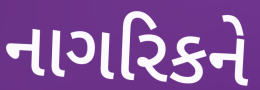
નાગરિકને